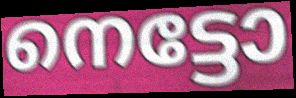
നെട്ടോ